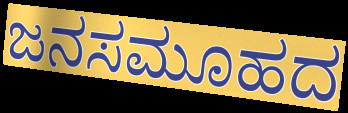
ಜನಸಮೂಹದ